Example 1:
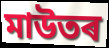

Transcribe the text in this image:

মাউতৰ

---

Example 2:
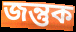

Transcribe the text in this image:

জন্তুক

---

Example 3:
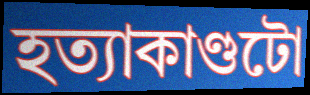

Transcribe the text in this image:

হত্যাকাণ্ডটো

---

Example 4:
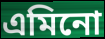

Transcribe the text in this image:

এমিনো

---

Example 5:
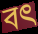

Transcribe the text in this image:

বৎ